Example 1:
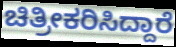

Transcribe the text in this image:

ಚಿತ್ರೀಕರಿಸಿದ್ದಾರೆ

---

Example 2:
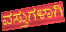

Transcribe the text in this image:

ವಸ್ತುಗಳಾಗಿ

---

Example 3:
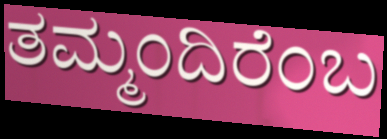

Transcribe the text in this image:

ತಮ್ಮಂದಿರೆಂಬ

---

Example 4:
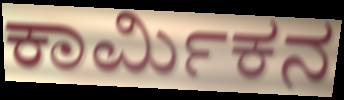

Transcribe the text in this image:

ಕಾರ್ಮಿಕನ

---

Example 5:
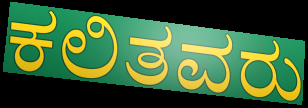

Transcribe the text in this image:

ಕಲಿತವರು